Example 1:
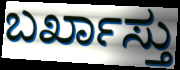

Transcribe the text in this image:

ಬರ್ಖಾಸ್ತು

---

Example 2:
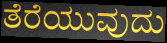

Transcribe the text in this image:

ತೆರೆಯುವುದು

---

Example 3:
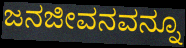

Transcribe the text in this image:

ಜನಜೀವನವನ್ನೂ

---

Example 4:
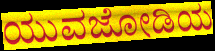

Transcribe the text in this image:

ಯುವಜೋಡಿಯ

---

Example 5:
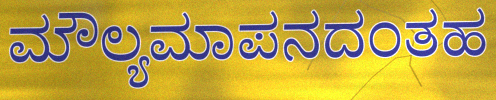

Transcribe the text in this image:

ಮೌಲ್ಯಮಾಪನದಂತಹ